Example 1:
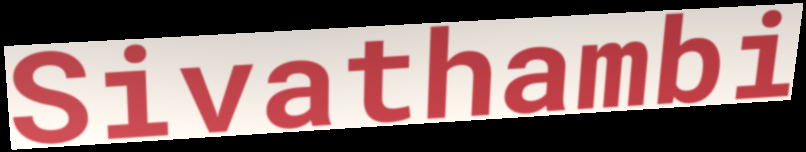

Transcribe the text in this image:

Sivathambi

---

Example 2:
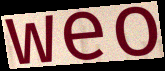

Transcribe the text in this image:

weo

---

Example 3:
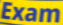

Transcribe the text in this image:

Exam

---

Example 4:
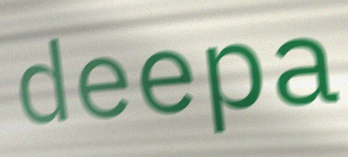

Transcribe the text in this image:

deepa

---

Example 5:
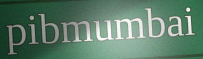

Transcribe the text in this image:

pibmumbai